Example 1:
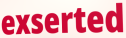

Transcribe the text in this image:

exserted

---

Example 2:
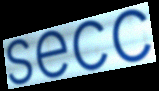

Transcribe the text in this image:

secc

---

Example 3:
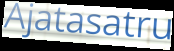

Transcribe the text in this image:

Ajatasatru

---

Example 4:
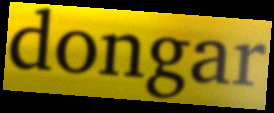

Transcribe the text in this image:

dongar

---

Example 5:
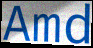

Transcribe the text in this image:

Amd